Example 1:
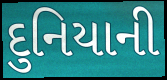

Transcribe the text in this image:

દુનિયાની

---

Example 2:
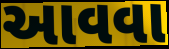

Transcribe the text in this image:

આવવા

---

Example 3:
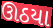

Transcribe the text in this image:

ઊઠયા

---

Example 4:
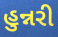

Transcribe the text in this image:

હુન્નરી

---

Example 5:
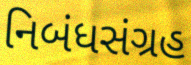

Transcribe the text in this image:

નિબંધસંગ્રહ